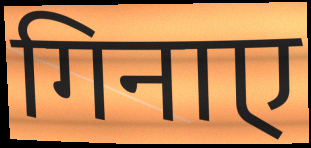
गिनाए